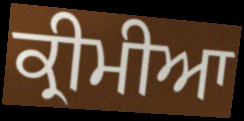
ਕ੍ਰੀਮੀਆ